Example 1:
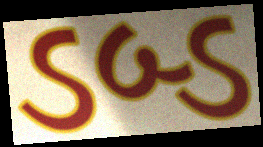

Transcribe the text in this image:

ડબ્ડ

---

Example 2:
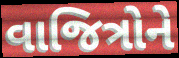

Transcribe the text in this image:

વાજિત્રોને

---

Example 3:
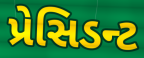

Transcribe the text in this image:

પ્રેસિડન્ટ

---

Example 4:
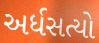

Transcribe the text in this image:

અર્ધસત્યો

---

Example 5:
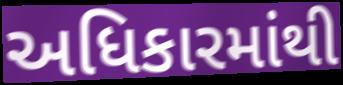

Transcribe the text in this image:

અધિકારમાંથી